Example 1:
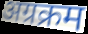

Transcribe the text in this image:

अग्रक्रम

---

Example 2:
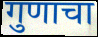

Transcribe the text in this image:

गुणाचा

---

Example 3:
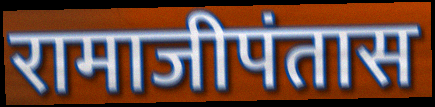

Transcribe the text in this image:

रामाजीपंतास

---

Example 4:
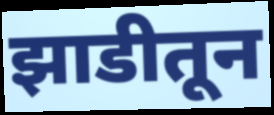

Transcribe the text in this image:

झाडीतून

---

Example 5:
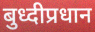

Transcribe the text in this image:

बुध्दीप्रधान